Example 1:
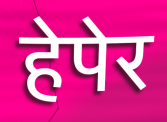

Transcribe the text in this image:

हेपेर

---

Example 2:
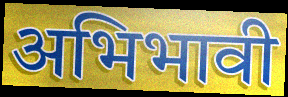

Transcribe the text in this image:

अभिभावी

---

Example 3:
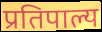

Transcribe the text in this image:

प्रतिपाल्य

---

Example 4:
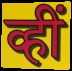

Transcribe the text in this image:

व्हीं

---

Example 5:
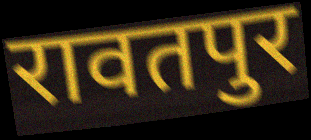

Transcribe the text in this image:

रावतपुर